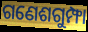
ଗଣେଶଗୁମ୍ଫା